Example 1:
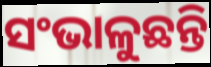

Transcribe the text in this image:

ସଂଭାଳୁଛନ୍ତି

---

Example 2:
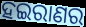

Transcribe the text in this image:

ହଇରାଣର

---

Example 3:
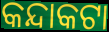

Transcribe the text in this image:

କନ୍ଦାକଟା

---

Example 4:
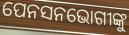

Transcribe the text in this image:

ପେନସନଭୋଗୀଙ୍କୁ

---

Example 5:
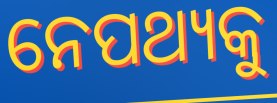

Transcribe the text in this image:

ନେପଥ୍ୟକୁ